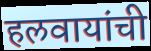
हलवायांची